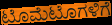
ಟೊಮೆಟೊಗಳಿಗೆ